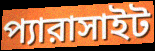
প্যারাসাইট